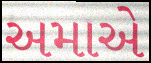
અમાએ